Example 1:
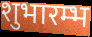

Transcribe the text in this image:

शुभारम्भ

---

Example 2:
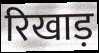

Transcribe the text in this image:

रिखाड़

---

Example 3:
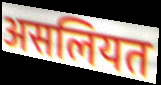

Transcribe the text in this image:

असलियत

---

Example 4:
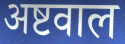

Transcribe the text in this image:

अष्टवाल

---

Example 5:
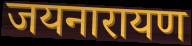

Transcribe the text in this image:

जयनारायण